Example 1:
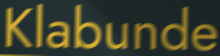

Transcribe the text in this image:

Klabunde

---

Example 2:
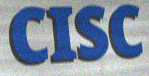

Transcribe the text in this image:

CISC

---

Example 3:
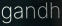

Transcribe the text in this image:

gandh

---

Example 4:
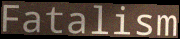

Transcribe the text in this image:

Fatalism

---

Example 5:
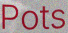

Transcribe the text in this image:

Pots